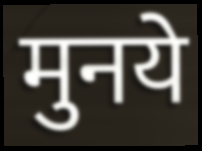
मुनये